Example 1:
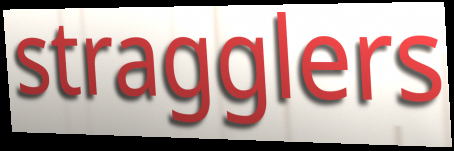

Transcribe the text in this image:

stragglers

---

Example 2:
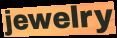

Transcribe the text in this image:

jewelry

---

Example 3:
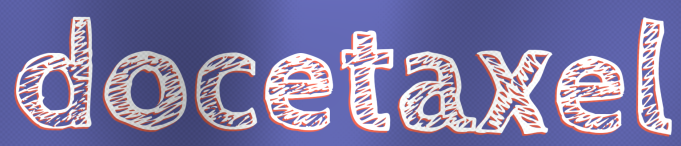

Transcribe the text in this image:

docetaxel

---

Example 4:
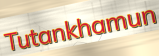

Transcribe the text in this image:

Tutankhamun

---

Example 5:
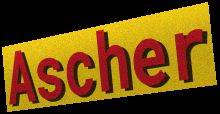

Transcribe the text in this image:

Ascher